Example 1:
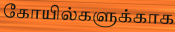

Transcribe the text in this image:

கோயில்களுக்காக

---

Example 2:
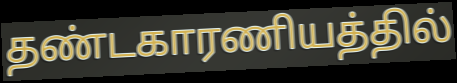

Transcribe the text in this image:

தண்டகாரணியத்தில்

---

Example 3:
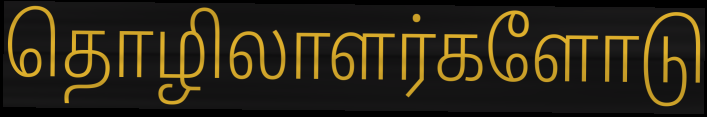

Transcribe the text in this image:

தொழிலாளர்களோடு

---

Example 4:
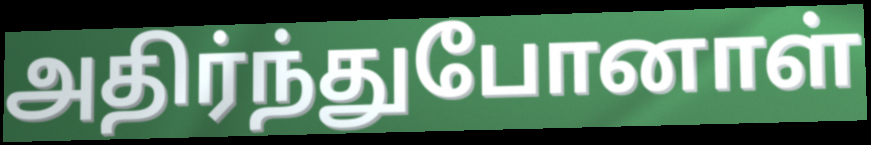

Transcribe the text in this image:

அதிர்ந்துபோனாள்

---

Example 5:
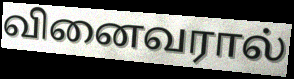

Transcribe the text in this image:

வினைவரால்